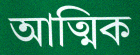
আত্মিক